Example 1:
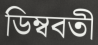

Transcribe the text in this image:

ডিম্ববতী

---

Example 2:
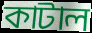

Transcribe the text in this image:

কাটাল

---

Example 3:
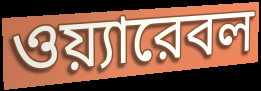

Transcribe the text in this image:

ওয়্যারেবল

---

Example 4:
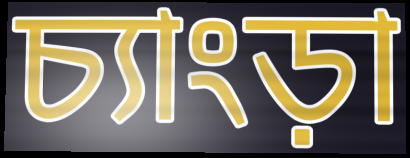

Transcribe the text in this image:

চ্যাংড়া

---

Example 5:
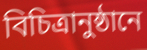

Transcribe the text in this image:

বিচিত্রানুষ্ঠানে